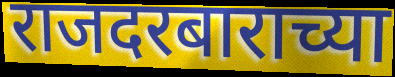
राजदरबाराच्या